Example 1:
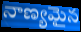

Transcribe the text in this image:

నాణ్యమైన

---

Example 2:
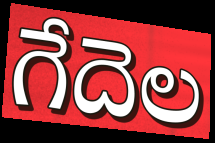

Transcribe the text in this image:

గేదెల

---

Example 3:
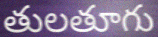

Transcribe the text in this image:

తులతూగు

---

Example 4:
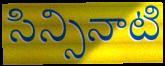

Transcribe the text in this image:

సిన్సినాటి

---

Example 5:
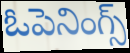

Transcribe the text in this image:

ఓపెనింగ్స్